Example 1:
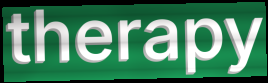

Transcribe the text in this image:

therapy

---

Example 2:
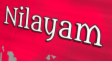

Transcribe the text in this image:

Nilayam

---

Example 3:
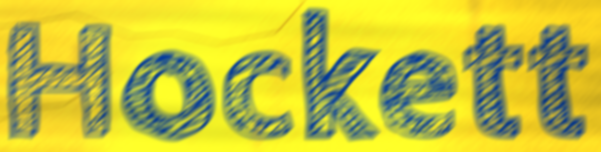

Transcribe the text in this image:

Hockett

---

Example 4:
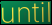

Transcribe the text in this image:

until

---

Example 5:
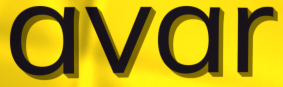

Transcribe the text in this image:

avar